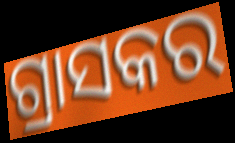
ଗ୍ରାସକର